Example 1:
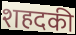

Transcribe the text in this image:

शहदकी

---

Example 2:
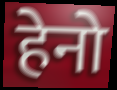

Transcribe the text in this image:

हेनो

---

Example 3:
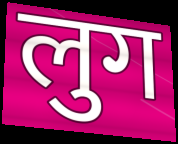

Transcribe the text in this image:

लुग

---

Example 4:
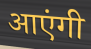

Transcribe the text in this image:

आएंगी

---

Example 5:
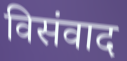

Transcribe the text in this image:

विसंवाद